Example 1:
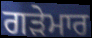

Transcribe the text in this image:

ਗੜੇਮਾਰ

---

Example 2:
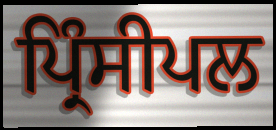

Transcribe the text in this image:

ਪ੍ਰਿੰਸੀਪਲ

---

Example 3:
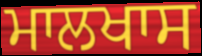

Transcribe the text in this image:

ਮਾਲਖਾਸ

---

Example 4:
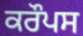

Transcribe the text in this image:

ਕਰੌਪਸ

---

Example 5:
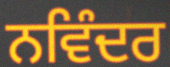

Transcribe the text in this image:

ਨਵਿੰਦਰ